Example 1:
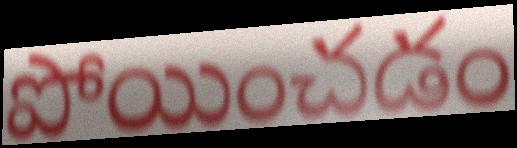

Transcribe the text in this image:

పోయించడం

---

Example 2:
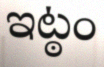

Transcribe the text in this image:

ఇట్ఠం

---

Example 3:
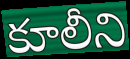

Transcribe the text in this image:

కూలీని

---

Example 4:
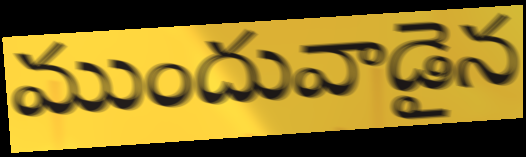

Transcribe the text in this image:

ముందువాడైన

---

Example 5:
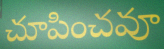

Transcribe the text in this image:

చూపించవూ